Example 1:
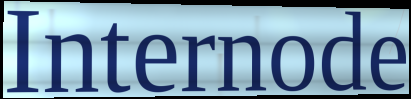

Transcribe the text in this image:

Internode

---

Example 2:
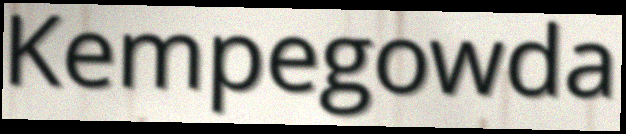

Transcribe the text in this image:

Kempegowda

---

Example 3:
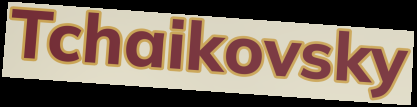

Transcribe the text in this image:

Tchaikovsky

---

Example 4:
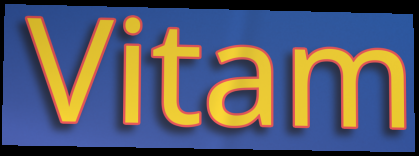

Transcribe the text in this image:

Vitam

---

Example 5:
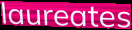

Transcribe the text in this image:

laureates